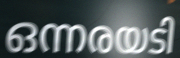
ഒന്നരയടി